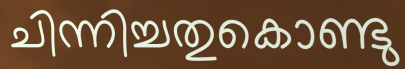
ചിന്നിച്ചതുകൊണ്ടു